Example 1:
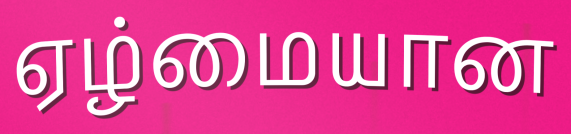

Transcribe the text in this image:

ஏழ்மையான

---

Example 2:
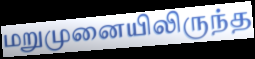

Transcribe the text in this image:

மறுமுனையிலிருந்த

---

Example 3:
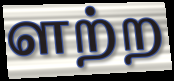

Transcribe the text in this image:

ளற்ற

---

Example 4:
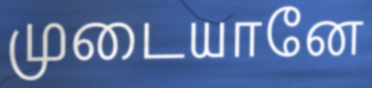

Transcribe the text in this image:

முடையானே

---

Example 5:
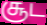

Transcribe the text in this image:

சூட